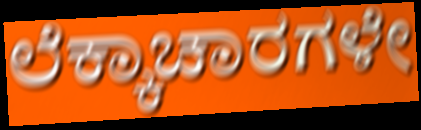
ಲೆಕ್ಕಾಚಾರಗಳೇ